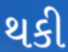
થકી